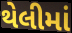
થેલીમાં